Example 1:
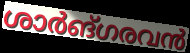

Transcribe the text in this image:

ശാർങ്ഗരവൻ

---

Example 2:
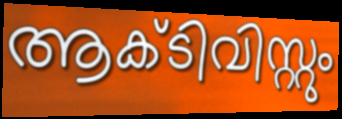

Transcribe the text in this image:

ആക്ടിവിസ്റ്റും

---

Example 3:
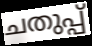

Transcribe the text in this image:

ചതുപ്പ്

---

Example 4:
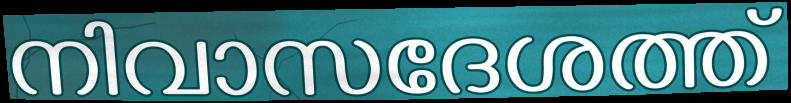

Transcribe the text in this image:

നിവാസദേശത്ത്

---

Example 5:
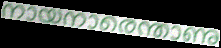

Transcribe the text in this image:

നായനാരെന്താണു